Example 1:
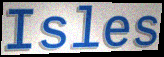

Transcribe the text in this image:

Isles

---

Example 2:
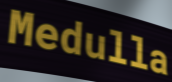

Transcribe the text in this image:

Medulla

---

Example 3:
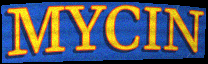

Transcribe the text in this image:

MYCIN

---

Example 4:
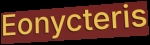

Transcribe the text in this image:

Eonycteris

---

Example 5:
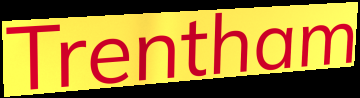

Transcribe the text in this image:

Trentham